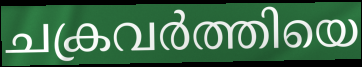
ചക്രവർത്തിയെ